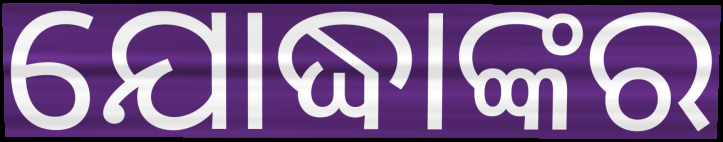
ଯୋଦ୍ଧାଙ୍କର